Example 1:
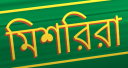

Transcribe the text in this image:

মিশরিরা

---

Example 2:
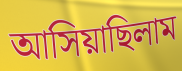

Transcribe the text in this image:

আসিয়াছিলাম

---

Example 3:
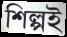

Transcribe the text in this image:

শিল্পই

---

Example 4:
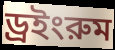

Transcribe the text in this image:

ড্রইংরুম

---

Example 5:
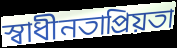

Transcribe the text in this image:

স্বাধীনতাপ্রিয়তা